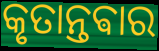
କୃତାନ୍ତଵାର